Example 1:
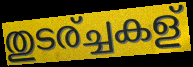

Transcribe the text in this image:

തുടര്ച്ചകള്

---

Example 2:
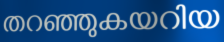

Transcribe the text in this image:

തറഞ്ഞുകയറിയ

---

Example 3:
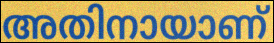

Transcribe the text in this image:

അതിനായാണ്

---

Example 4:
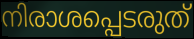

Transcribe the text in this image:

നിരാശപ്പെടരുത്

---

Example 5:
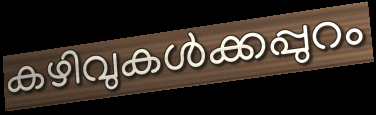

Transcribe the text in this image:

കഴിവുകൾക്കപ്പുറം